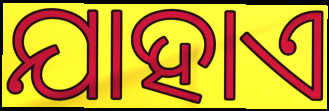
ଯାହାଏ